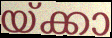
യ്‌ക്കാ